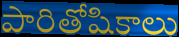
పారితోషికాలు